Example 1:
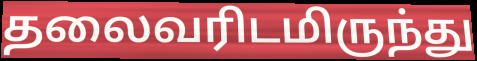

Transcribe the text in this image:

தலைவரிடமிருந்து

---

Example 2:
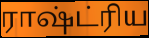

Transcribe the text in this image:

ராஷ்ட்ரிய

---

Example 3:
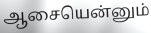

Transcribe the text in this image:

ஆசையென்னும்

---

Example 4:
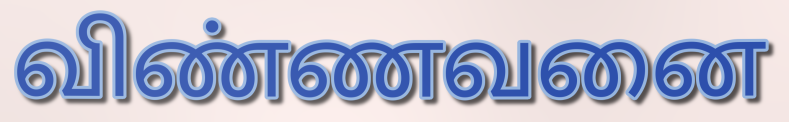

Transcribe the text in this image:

விண்ணவனை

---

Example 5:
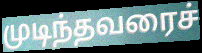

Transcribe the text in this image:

முடிந்தவரைச்